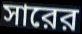
সারের